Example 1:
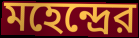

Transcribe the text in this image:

মহেন্দ্রের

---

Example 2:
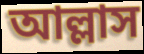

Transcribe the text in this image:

আল্লাস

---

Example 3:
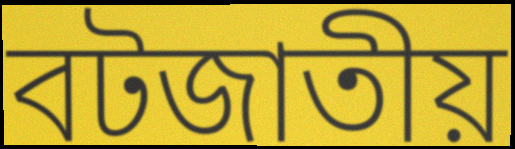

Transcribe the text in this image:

বটজাতীয়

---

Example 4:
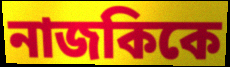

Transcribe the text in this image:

নাজকিকে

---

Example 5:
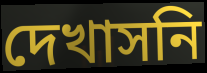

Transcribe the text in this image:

দেখাসনি